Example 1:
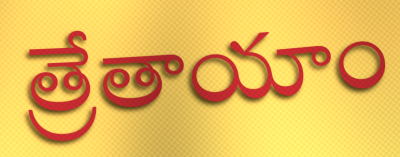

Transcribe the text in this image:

త్రేతాయాం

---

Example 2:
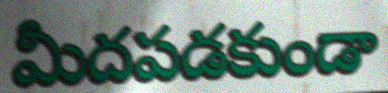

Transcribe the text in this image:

మీదపడకుండా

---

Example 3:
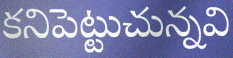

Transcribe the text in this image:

కనిపెట్టుచున్నవి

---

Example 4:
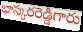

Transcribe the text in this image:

భాస్కరరెడ్డిగారు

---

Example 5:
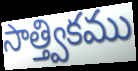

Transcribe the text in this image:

సాత్త్వికము